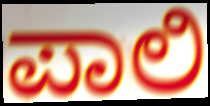
ಪಾಲಿ